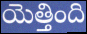
యెత్తింది